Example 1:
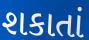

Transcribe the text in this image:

શકાતાં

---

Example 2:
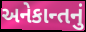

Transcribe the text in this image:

અનેકાન્તનું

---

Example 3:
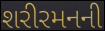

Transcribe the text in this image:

શરીરમનની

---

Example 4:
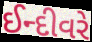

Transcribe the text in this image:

ઈન્દીવરે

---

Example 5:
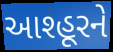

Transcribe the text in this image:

આશ્હૂરને